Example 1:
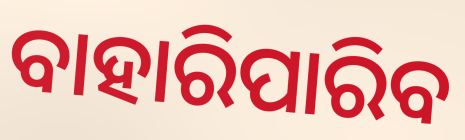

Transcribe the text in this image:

ବାହାରିପାରିବ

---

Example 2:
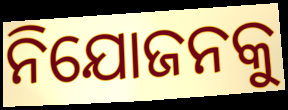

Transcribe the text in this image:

ନିଯୋଜନକୁ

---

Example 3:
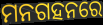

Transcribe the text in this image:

ମନଗହନରେ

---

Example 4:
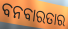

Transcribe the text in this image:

ବନବାରତାର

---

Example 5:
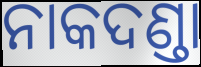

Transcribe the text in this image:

ନାକଦଣ୍ଡା